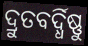
ଦ୍ରୁତବର୍ଦ୍ଧିଷ୍ଣୁ